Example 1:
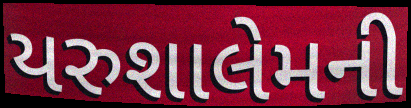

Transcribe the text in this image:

યરુશાલેમની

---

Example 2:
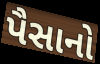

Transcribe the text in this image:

પૈસાનો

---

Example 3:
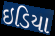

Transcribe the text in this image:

ઇડિયા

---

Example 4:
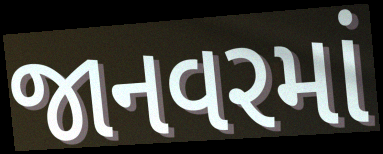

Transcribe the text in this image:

જાનવરમાં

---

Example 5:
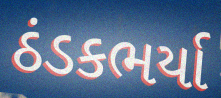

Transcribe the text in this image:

ઠંડકભર્યા